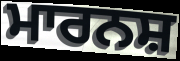
ਮਾਰਨਸ਼